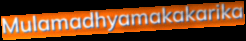
Mulamadhyamakakarika